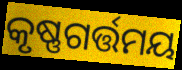
କୃଷ୍ଣଗର୍ତ୍ତମୟ